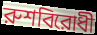
রুশবিরোধী